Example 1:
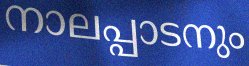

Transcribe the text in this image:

നാലപ്പാടനും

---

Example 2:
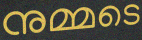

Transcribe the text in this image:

നുമ്മടെ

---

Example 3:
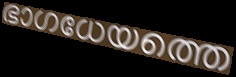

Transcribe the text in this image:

ഭാഗധേയത്തെ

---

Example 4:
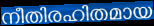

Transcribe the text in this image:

നീതിരഹിതമായ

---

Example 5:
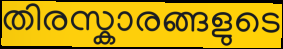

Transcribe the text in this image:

തിരസ്കാരങ്ങളുടെ